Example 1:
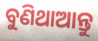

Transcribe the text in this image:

ବୁଣିଥାଆନ୍ତୁ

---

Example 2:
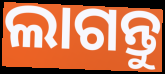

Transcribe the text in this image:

ଲାଗନ୍ତୁ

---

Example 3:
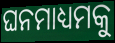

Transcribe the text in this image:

ଘନମାଧ୍ୟମକୁ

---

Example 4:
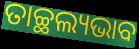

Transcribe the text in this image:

ତାଚ୍ଛଲ୍ୟଭାବ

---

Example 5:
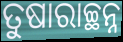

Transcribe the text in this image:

ତୁଷାରାଚ୍ଛନ୍ନ